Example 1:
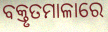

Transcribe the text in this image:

ବକ୍ତୃତମାଳାରେ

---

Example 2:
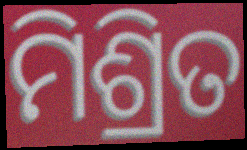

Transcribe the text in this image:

ମିଶ୍ରିତ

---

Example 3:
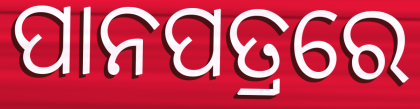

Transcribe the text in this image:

ପାନପତ୍ରରେ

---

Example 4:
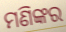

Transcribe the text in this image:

ମଣିଙ୍କର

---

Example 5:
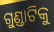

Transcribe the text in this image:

ଗୁଣ୍ଡାଟିକୁ